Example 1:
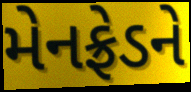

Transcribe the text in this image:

મેનફ્રેડને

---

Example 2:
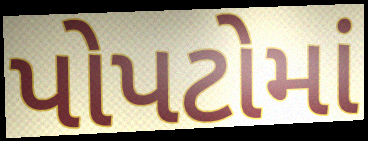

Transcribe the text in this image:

પોપટોમાં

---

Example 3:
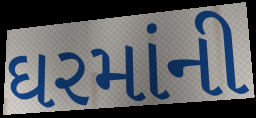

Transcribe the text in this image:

ઘરમાંની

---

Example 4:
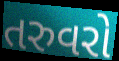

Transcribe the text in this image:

તરુવરો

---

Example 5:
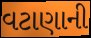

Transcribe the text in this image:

વટાણાની